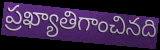
ప్రఖ్యాతిగాంచినది